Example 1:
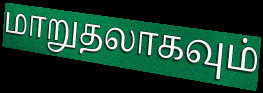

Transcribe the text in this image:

மாறுதலாகவும்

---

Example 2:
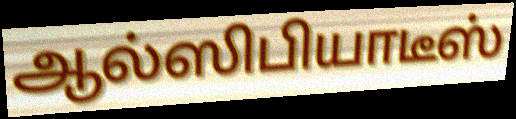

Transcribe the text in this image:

ஆல்ஸிபியாடீஸ்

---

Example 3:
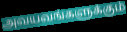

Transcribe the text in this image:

அவயவங்களுக்கும்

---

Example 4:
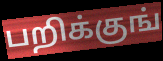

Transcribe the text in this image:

பறிக்குங்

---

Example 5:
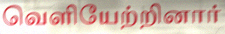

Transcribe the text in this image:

வெளியேற்றினார்